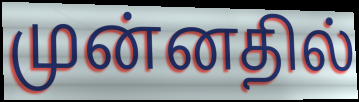
முன்னதில்